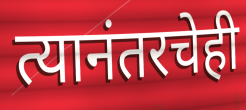
त्यानंतरचेही